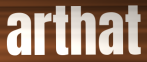
arthat